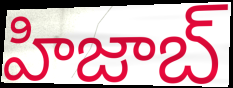
హిజాబ్